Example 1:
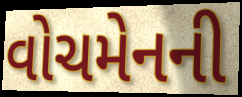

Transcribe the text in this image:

વોચમેનની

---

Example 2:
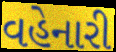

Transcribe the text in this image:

વહેનારી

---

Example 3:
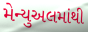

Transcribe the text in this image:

મેન્યુઅલમાંથી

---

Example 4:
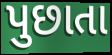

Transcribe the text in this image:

પુછાતા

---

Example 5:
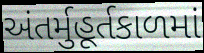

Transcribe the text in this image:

અંતર્મુહૂર્તકાળમાં